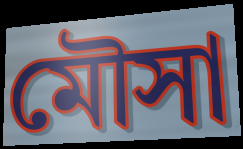
মৌসা